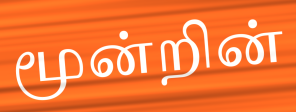
மூன்றின்